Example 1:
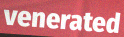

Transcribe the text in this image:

venerated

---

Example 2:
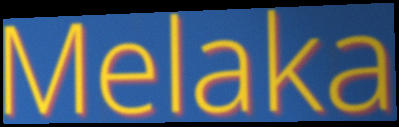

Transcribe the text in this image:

Melaka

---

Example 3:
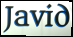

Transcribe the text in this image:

Javid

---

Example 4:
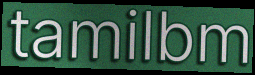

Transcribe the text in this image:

tamilbm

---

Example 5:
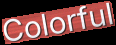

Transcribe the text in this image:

Colorful